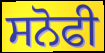
ਸਨੋਫੀ